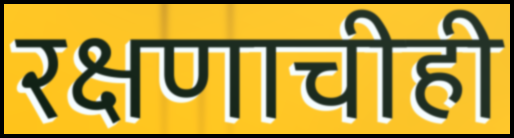
रक्षणाचीही